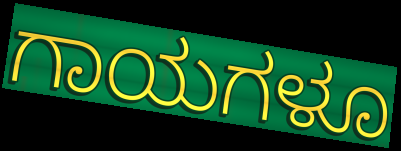
ಗಾಯಗಳೂ